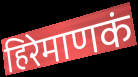
हिरेमाणकं